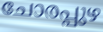
ചോരപ്പുഴ